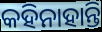
କହିନାହାନ୍ତି